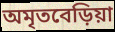
অমৃতবেড়িয়া